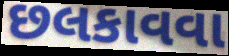
છલકાવવા